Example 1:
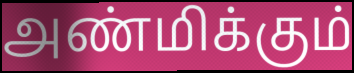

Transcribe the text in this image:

அண்மிக்கும்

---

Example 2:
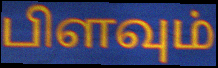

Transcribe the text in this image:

பிளவும்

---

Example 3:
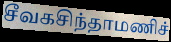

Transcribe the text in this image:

சீவகசிந்தாமணிச்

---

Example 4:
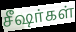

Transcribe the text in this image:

சீஷர்கள்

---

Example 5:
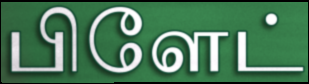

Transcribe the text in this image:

பிளேட்